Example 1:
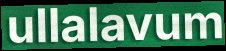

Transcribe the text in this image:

ullalavum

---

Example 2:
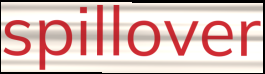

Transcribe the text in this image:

spillover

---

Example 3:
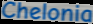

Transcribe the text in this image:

Chelonia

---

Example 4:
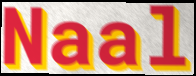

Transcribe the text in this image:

Naal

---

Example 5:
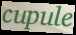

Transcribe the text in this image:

cupule